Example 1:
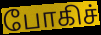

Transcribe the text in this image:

போகிச்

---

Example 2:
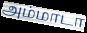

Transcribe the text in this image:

அம்மாடா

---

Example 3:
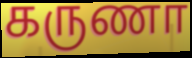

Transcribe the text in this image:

கருணா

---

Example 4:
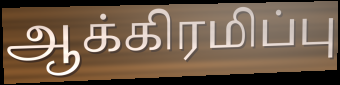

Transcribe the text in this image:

ஆக்கிரமிப்பு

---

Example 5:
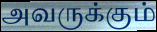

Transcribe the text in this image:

அவருக்கும்